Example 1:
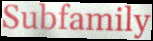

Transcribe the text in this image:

Subfamily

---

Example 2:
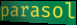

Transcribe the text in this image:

parasol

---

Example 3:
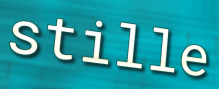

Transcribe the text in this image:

stille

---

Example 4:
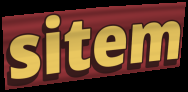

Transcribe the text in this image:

sitem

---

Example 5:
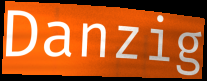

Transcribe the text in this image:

Danzig